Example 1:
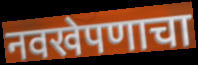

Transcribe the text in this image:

नवखेपणाचा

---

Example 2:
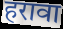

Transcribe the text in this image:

हरावा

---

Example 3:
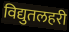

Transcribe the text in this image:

विद्युतलहरी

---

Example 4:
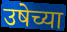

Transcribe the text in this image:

उषेच्या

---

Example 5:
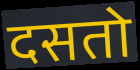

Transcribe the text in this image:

दसतो